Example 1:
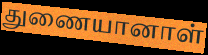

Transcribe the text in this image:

துணையானாள்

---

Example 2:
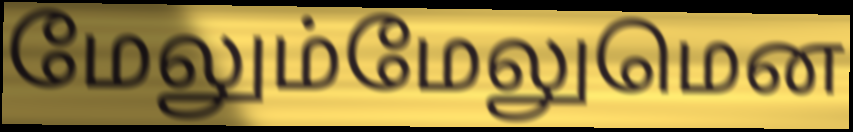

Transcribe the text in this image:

மேலும்மேலுமென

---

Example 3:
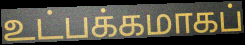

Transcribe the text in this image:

உட்பக்கமாகப்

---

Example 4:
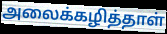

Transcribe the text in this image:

அலைக்கழித்தாள்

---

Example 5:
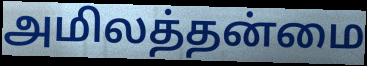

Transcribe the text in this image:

அமிலத்தன்மை